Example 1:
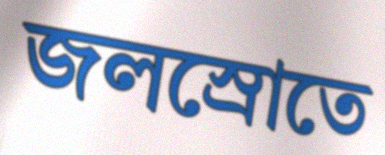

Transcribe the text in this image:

জলস্রোতে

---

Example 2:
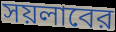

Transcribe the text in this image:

সয়লাবের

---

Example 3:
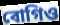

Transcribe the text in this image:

বোগিও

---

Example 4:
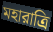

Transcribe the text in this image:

মহারাত্রি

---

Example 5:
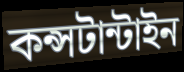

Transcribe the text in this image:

কন্সটান্টাইন